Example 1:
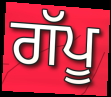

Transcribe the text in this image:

ਗੱਪੂ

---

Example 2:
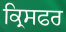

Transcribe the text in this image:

ਕ੍ਰਿਸਫਰ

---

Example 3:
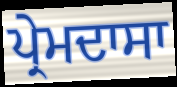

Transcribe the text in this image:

ਪ੍ਰੇਮਦਾਸਾ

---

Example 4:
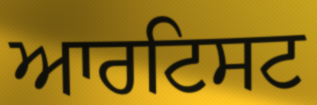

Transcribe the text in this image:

ਆਰਟਿਸਟ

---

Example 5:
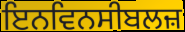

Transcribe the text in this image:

ਇਨਵਿਨਸੀਬਲਜ਼